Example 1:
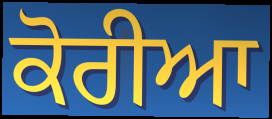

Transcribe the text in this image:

ਕੋਰੀਆ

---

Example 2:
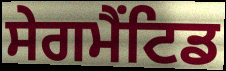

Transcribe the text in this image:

ਸੇਗਮੈਂਟਿਡ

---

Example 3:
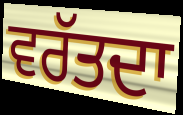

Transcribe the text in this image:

ਵਰੱਤਦਾ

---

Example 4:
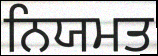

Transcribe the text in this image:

ਨਿਯਮਤ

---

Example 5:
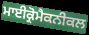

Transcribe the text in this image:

ਮਾਈਕ੍ਰੋਮੈਕਨੀਕਲ